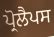
ਪ੍ਰੋਲੈਪਸ